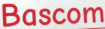
Bascom